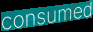
consumed